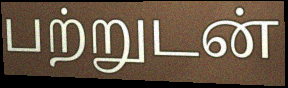
பற்றுடன்